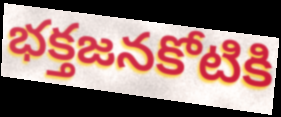
భక్తజనకోటికి